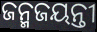
ଜନ୍ମଜୟନ୍ତୀ